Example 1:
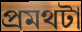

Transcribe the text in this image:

প্রমথটা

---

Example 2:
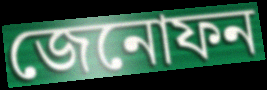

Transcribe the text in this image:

জেনোফন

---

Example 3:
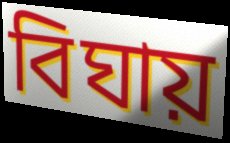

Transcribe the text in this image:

বিঘায়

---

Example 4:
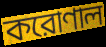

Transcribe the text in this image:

করোণাল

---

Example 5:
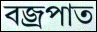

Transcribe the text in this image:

বজ্রপাত